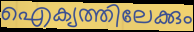
ഐക്യത്തിലേക്കും